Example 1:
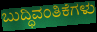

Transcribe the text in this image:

ಬುದ್ಧಿವಂತಿಕೆಗಳು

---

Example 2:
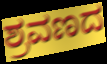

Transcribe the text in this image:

ಶ್ರವಣದ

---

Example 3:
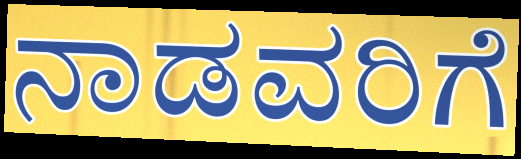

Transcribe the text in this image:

ನಾಡವರಿಗೆ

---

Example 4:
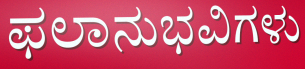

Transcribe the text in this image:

ಫಲಾನುಭವಿಗಳು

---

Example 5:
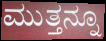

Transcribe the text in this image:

ಮುತ್ತನ್ನೂ